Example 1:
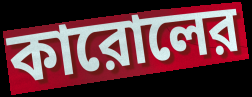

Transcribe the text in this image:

কারোলের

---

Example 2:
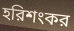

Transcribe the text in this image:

হরিশংকর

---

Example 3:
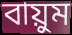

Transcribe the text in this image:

বায়ুম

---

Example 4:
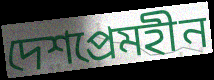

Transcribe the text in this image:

দেশপ্রেমহীন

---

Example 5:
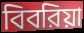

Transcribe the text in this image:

বিবরিয়া